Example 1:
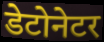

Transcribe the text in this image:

डेटोनेटर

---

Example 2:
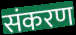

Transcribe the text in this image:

संकरण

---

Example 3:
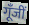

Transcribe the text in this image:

गूँजीं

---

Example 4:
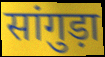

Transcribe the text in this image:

सांगुड़ा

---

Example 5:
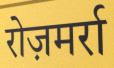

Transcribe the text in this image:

रोज़मर्रा